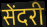
सेंदरी